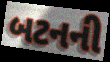
બટનની